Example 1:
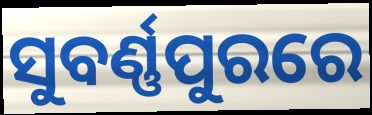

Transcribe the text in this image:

ସୁବର୍ଣ୍ଣପୁରରେ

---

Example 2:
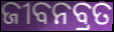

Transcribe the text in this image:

ଜୀବନବ୍ରତ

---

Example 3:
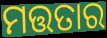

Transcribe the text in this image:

ମତ୍ତତାର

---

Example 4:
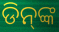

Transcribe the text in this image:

ଡିନ୍‌ଙ୍କ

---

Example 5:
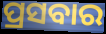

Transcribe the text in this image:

ପ୍ରସବାର